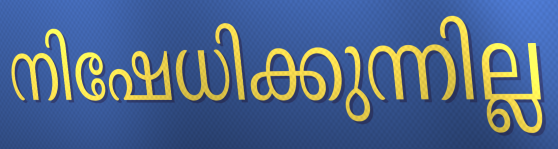
നിഷേധിക്കുന്നില്ല